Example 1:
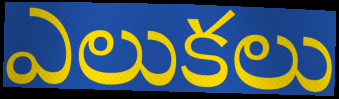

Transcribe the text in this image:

ఎలుకలు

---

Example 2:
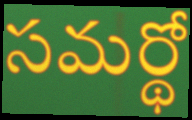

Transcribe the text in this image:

సమర్థో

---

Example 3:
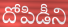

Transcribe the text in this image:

దోపిడీని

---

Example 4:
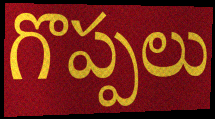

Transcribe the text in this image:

గొప్పలు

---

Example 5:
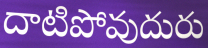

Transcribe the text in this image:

దాటిపోవుదురు